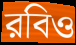
রবিও